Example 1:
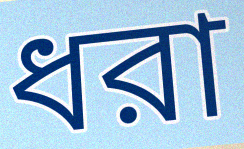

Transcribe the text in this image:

ধরা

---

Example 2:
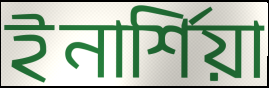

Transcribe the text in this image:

ইনার্শিয়া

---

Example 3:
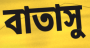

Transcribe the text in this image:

বাতাসু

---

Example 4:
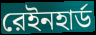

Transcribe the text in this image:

রেইনহার্ড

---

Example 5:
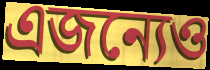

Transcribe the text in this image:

এজন্যেও